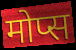
मोप्स